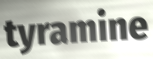
tyramine